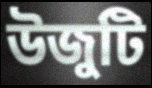
উজুটি